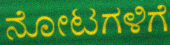
ನೋಟಗಳಿಗೆ